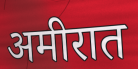
अमीरात